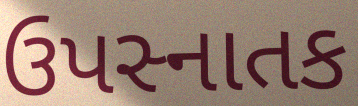
ઉપસ્નાતક